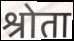
श्रोता